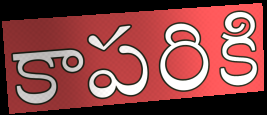
కాపరికి